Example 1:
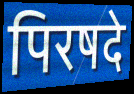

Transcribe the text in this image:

पिरषदे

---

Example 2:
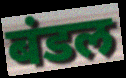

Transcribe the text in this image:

बंडल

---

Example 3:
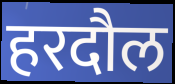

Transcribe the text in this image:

हरदौल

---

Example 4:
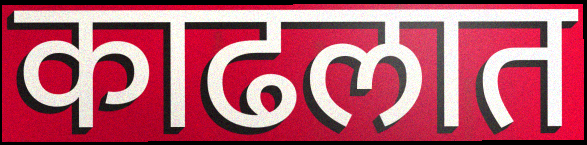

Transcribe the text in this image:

काढलात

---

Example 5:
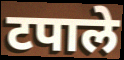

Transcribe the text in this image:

टपाले